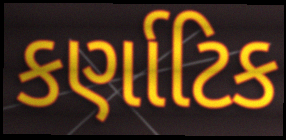
કર્ણાટિક